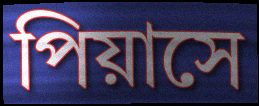
পিয়াসে